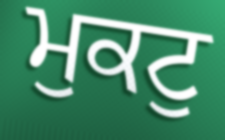
ਮੁਕਟੁ